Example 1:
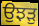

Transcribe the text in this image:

ਉਝੜੁ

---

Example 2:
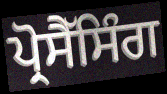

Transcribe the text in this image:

ਪ੍ਰੋਸੈੱਸਿੰਗ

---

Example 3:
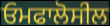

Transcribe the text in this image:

ਓਮਫਾਲੋਸੀਲ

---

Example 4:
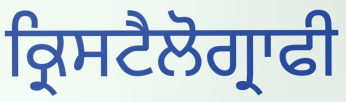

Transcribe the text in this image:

ਕ੍ਰਿਸਟੈਲੋਗ੍ਰਾਫੀ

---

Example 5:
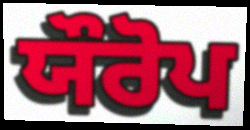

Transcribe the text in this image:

ਯੌਰੋਪ